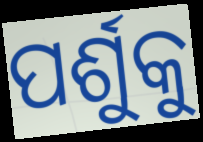
ପର୍ଶୁକୁ